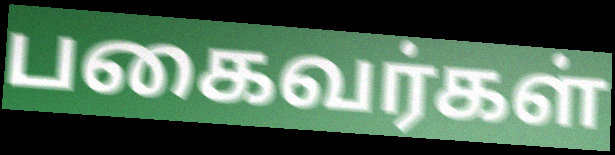
பகைவர்கள்